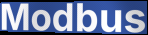
Modbus